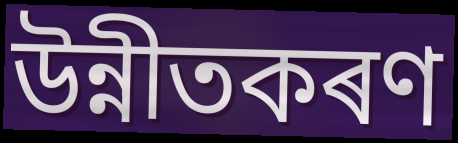
উন্নীতকৰণ